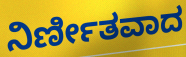
ನಿರ್ಣೀತವಾದ